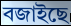
বজাইছে